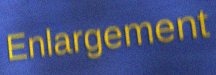
Enlargement